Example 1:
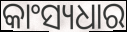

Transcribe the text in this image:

କାଂସ୍ୟଧାର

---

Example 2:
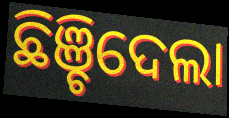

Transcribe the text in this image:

ଛିଞ୍ଚିଦେଲା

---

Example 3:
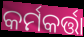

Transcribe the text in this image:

କର୍ମକର୍ତ୍ତା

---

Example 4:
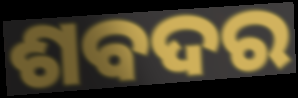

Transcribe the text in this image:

ଶବଦର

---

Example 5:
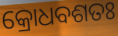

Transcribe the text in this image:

କ୍ରୋଧବଶତଃ